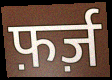
फ़र्ज़